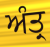
ਅੰਤ੍ਰ